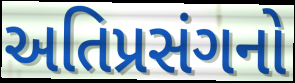
અતિપ્રસંગનો